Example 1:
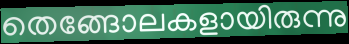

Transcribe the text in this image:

തെങ്ങോലകളായിരുന്നു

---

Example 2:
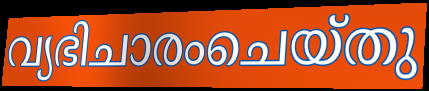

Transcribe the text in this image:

വ്യഭിചാരംചെയ്തു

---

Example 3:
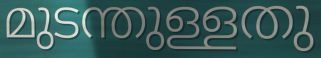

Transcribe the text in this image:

മുടന്തുള്ളതു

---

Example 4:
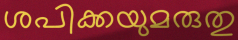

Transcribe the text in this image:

ശപിക്കയുമരുതു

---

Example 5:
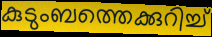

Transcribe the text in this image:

കുടുംബത്തെക്കുറിച്ച്